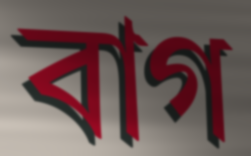
বাগ